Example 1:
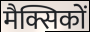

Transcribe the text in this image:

मैक्सिकों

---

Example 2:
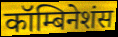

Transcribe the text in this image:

कॉम्बिनेशंस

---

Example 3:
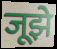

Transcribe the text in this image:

जूझे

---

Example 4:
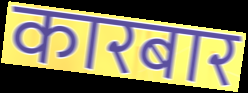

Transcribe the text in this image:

कारबार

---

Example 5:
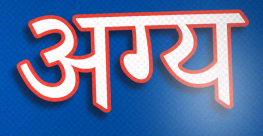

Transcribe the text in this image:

अग्य